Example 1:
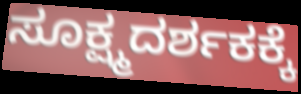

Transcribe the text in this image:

ಸೂಕ್ಷ್ಮದರ್ಶಕಕ್ಕೆ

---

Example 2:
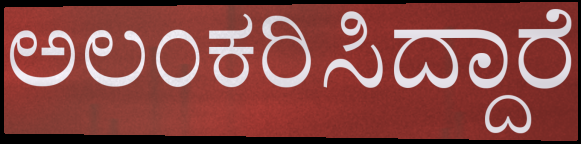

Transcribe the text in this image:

ಅಲಂಕರಿಸಿದ್ದಾರೆ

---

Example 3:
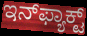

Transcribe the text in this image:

ಇನ್‌ಫ್ಯಾಕ್ಟ್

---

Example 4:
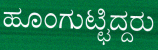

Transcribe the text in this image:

ಹೂಂಗುಟ್ಟಿದ್ದರು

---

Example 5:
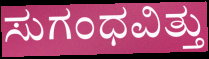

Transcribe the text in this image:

ಸುಗಂಧವಿತ್ತು